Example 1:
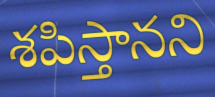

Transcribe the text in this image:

శపిస్తానని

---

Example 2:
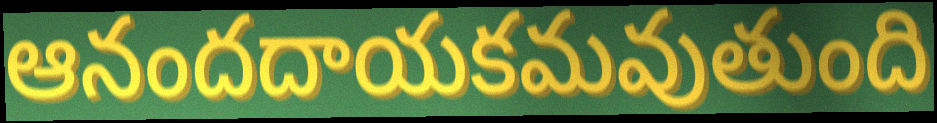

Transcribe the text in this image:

ఆనందదాయకమవుతుంది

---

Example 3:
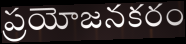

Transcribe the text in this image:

ప్రయోజనకరం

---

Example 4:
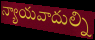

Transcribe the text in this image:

న్యాయవాదుల్ని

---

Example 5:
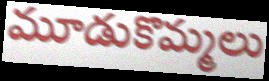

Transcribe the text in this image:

మూడుకొమ్మలు